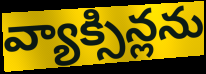
వ్యాక్సిన్లను